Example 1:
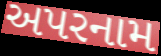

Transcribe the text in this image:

અપરનામ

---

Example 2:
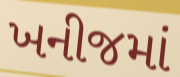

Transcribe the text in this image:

ખનીજમાં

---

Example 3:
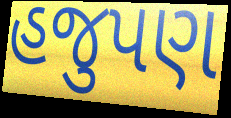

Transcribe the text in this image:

હજુપણ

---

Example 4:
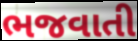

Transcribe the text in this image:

ભજવાતી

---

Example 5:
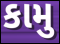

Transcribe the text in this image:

કામુ